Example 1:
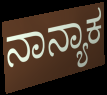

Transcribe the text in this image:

ನಾನ್ಯಾಕ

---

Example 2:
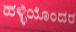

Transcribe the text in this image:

ಹಳ್ಳಿಯೊಂದರ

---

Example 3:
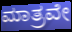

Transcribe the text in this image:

ಮಾತ್ರವೇ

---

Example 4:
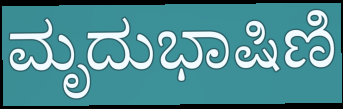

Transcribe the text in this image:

ಮೃದುಭಾಷಿಣಿ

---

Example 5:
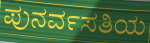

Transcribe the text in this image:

ಪುನರ್ವಸತಿಯ